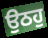
ਉਠਹੁ